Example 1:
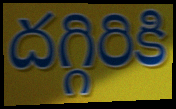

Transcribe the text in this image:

దగ్గిరికి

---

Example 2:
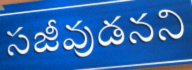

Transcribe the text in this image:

సజీవుడనని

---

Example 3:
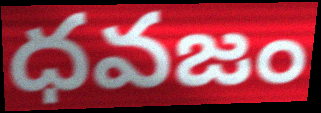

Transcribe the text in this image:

ధవజం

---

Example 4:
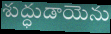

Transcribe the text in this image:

శుద్ధుడాయెను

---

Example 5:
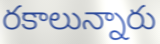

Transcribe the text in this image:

రకాలున్నారు